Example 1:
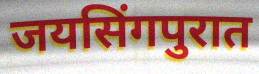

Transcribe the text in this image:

जयसिंगपुरात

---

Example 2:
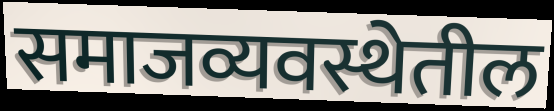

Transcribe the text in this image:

समाजव्यवस्थेतील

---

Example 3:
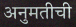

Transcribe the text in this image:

अनुमतीची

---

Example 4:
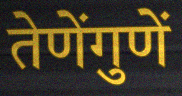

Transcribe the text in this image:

तेणेंगुणें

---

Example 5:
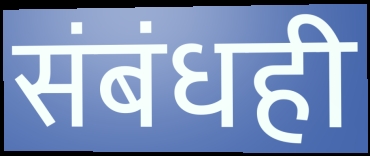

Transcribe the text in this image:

संबंधही